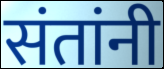
संतांनी